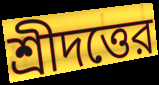
শ্রীদত্তের